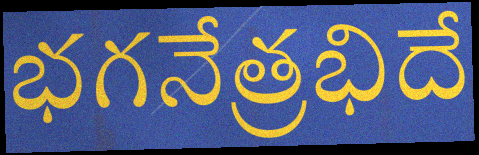
భగనేత్రభిదే